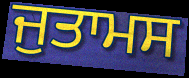
ਜੁਤਾਮਸ